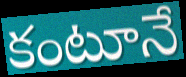
కంటూనే